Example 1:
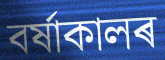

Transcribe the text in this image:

বৰ্ষাকালৰ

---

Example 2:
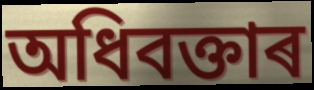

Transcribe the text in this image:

অধিবক্তাৰ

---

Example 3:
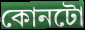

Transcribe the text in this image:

কোনটো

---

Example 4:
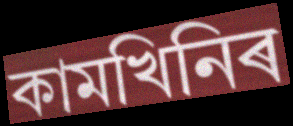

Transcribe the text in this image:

কামখিনিৰ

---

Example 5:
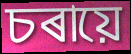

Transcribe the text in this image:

চৰায়ে